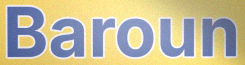
Baroun